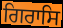
ਗਿਰਾਸਿ